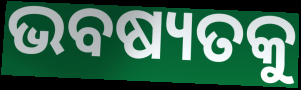
ଭବଷ୍ୟତକୁ